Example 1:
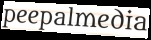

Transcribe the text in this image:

peepalmedia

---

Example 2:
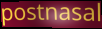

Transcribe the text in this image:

postnasal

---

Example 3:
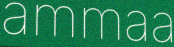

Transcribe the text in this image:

ammaa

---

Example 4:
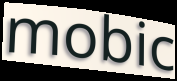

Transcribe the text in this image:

mobic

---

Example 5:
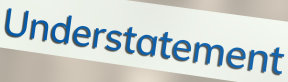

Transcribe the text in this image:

Understatement